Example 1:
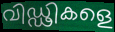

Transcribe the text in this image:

വിഡ്ഢികളെ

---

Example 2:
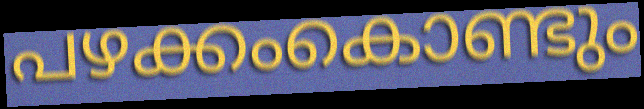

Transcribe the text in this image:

പഴക്കംകൊണ്ടും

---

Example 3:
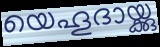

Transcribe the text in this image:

യെഹൂദായ്ക്കു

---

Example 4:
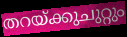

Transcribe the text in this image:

തറയ്ക്കുചുറ്റും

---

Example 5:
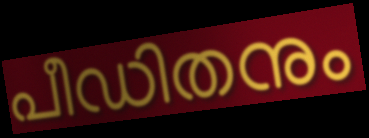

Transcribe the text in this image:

പീഡിതനും